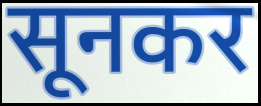
सूनकर